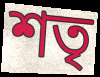
শতৃ